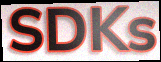
SDKs